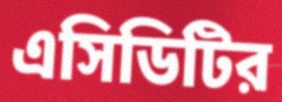
এসিডিটির